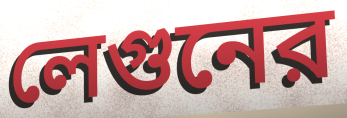
লেগুনের